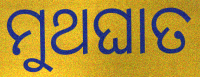
ମୁଥଘାତ